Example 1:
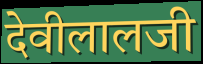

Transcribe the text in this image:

देवीलालजी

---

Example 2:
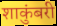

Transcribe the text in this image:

शाकुंबरी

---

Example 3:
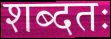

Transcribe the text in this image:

शब्दतः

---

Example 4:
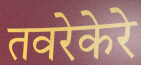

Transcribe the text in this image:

तवरेकेरे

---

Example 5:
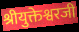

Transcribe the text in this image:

श्रीयुक्तेश्वरजी